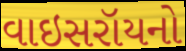
વાઇસરૉયનો